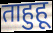
ताहुहू